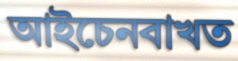
আইচেনবাখত